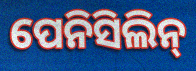
ପେନିସିଲିନ୍